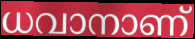
ധവാനാണ്